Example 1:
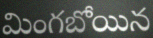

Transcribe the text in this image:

మింగబోయిన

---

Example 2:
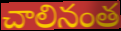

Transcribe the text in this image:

చాలినంత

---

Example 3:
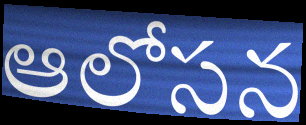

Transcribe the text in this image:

ఆలోసన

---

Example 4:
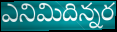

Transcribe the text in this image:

ఎనిమిదిన్నర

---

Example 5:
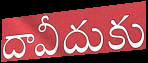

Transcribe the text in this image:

దావీదుకు